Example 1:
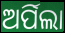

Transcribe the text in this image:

ଅର୍ପିଲା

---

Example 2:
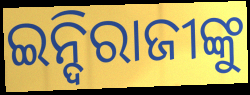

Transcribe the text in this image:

ଇନ୍ଦିରାଜୀଙ୍କୁ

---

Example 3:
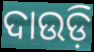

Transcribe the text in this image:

ଦାଉଡ଼ି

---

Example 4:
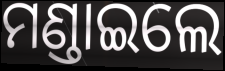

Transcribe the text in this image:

ମଣ୍ଡାଇଲେ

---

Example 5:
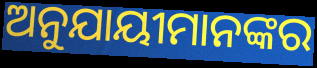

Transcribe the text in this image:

ଅନୁଯାୟୀମାନଙ୍କର